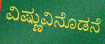
ವಿಷ್ಣುವಿನೊಡನೆ